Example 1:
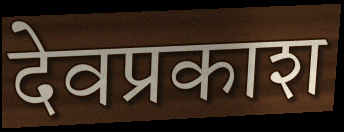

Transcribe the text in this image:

देवप्रकाश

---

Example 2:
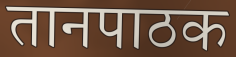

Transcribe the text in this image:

तानपाठक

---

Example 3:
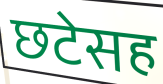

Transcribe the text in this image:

छटेसह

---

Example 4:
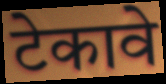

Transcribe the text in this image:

टेकावे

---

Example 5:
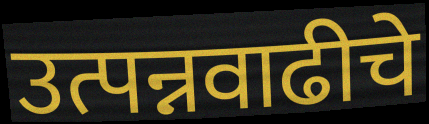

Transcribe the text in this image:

उत्पन्नवाढीचे